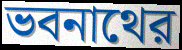
ভবনাথের